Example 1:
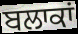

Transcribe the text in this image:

ਬਲਾਕਾਂ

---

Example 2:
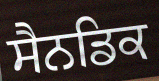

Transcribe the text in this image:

ਸੈਨਡਿਕ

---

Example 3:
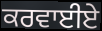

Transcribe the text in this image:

ਕਰਵਾਈਏ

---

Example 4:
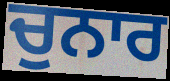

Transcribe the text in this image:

ਚੁਨਾਰ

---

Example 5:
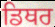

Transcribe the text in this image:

ਡਿਥਰ